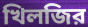
খিলজির